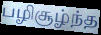
பழிசூழ்ந்த